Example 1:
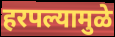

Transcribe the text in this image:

हरपल्यामुळे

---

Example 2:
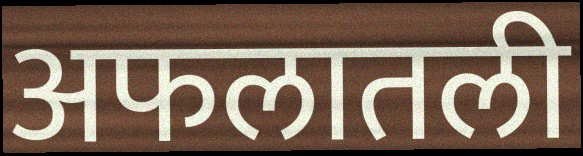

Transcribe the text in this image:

अफलातली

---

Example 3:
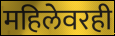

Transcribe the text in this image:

महिलेवरही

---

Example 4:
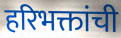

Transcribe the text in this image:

हरिभक्तांची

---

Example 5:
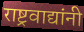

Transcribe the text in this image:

राष्ट्रवाद्यांनी